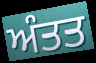
ਅੰਤਤ